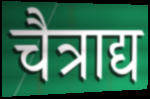
चैत्राद्य